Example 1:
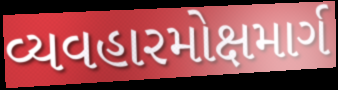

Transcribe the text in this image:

વ્યવહારમોક્ષમાર્ગ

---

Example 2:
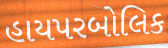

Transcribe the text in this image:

હાયપરબોલિક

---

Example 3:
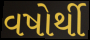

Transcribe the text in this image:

વષોર્થી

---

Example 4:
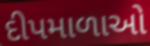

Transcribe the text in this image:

દીપમાળાઓ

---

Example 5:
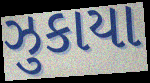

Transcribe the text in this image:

ઝુકાયા